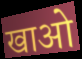
खाओ